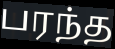
பரந்த